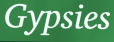
Gypsies